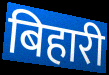
बिहारी